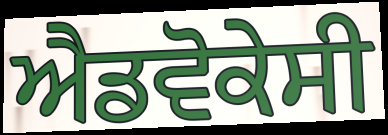
ਐਡਵੋਕੇਸੀ